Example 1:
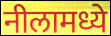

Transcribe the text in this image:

नीलामध्ये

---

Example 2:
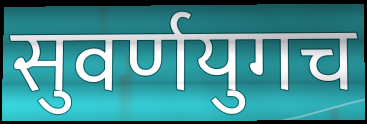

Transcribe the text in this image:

सुवर्णयुगच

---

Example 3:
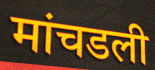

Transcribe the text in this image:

मांचडली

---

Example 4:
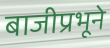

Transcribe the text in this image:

बाजीप्रभूने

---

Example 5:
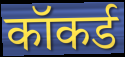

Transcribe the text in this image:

कॉकर्ड